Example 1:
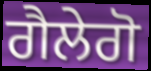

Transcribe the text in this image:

ਗੈਲੇਗੋ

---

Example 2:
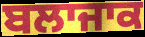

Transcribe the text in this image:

ਬਲਾਜਾਕ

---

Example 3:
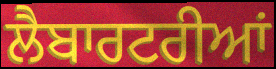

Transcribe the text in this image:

ਲੈਬਾਰਟਰੀਆਂ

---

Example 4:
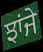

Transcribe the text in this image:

ਝਾਂਜੇ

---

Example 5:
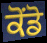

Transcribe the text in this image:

ਕੋਂਡੋ